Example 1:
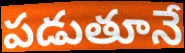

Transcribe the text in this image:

పడుతూనే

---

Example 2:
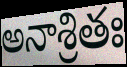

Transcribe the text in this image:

అనాశ్రితః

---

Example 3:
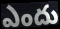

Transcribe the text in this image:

ఎందు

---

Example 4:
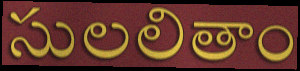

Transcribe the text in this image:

సులలితాం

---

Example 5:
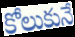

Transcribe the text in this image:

కోలుకునే